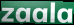
zaala